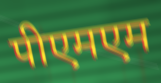
पीएमएम